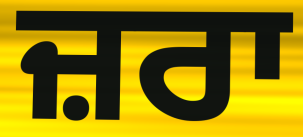
ਜ਼ਰਾ